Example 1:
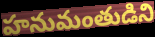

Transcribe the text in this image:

హనుమంతుడిని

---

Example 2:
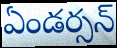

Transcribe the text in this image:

ఏండర్సన్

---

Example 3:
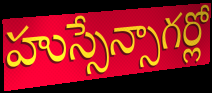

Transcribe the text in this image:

హుస్సేన్సాగర్లో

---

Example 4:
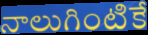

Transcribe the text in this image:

నాలుగింటికే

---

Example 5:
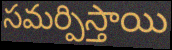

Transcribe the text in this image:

సమర్పిస్తాయి